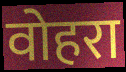
वोहरा